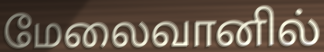
மேலைவானில்